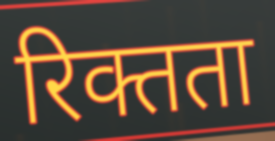
रिक्तता